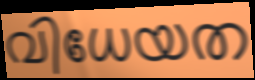
വിധേയത